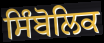
ਸਿੰਬੋਲਿਕ